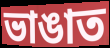
ভাঙাত